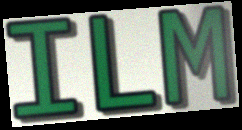
ILM